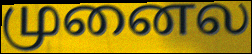
முனைல